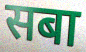
सबा